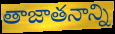
తాజాతనాన్ని